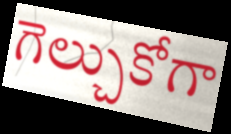
గెల్చుకోగా